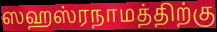
ஸஹஸ்ரநாமத்திற்கு